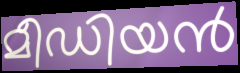
മീഡിയൻ